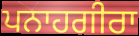
ਪਨਾਹਗੀਰਾ